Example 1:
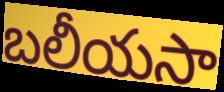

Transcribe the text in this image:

బలీయసా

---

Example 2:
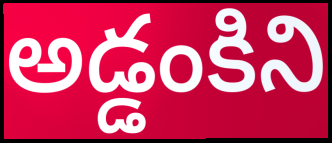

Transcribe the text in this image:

అడ్డంకిని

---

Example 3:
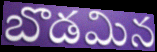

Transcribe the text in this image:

బొడమిన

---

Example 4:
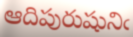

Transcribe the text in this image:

ఆదిపురుషునిఁ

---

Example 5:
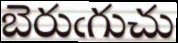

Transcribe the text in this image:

బెరుఁగుచు